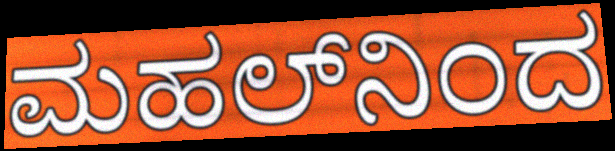
ಮಹಲ್‌ನಿಂದ